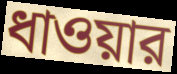
ধাওয়ার